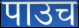
पाउच